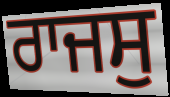
ਰਾਜਸੁ